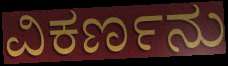
ವಿಕರ್ಣನು